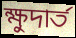
ক্ষুদার্ত